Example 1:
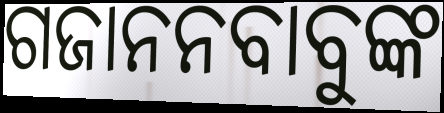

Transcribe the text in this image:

ଗଜାନନବାବୁଙ୍କ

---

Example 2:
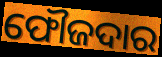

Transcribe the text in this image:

ଫୌଜଦାର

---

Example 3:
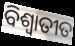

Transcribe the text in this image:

ବିଶ୍ୱାତୀତ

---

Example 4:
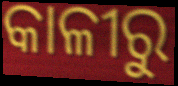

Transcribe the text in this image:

କାଳୀରୁ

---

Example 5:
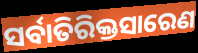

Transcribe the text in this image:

ସର୍ବାତିରିକ୍ତସାରେଣ